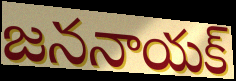
జననాయక్